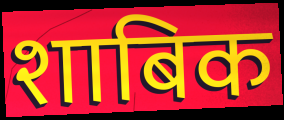
शाबिक